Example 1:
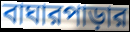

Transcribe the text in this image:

বাঘারপাড়ার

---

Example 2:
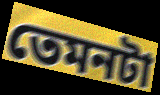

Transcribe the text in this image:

তেমনটা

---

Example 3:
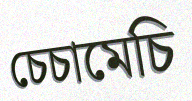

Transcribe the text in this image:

চেচামেচি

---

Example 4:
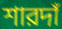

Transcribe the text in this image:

শারদাঁ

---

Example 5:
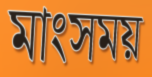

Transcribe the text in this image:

মাংসময়